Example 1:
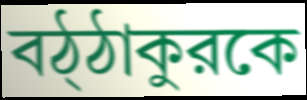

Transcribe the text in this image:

বঠ্ঠাকুরকে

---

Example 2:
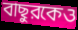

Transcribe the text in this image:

বাছুরকেও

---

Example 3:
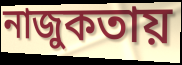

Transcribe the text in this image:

নাজুকতায়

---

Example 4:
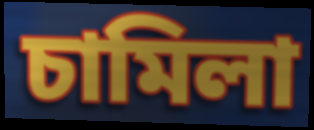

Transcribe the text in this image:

চামিলা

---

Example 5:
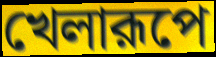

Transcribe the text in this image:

খেলারূপে